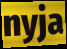
nyja